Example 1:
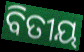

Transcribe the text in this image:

ବିତୀୟ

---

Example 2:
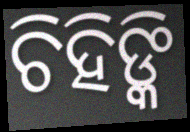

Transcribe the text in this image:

ଚିହିଙ୍କି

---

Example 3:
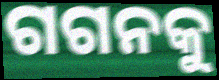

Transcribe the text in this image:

ଗଗନକୁ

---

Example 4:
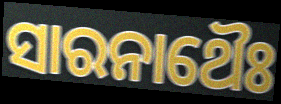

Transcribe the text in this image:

ସାରନାଥୈଃ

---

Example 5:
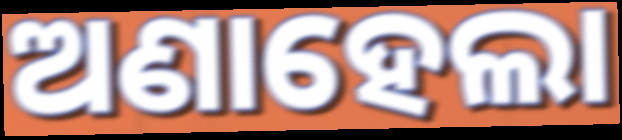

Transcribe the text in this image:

ଅଣାହେଲା